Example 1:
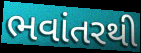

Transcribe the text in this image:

ભવાંતરથી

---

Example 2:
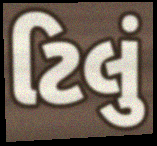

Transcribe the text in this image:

ટિલું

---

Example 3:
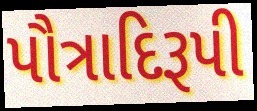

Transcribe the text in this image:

પૌત્રાદિરૂપી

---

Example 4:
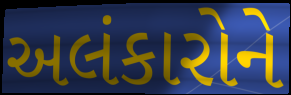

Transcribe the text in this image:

અલંકારોને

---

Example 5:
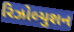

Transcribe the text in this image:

રિઝોલ્યુશન